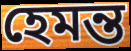
হেমন্ত